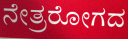
ನೇತ್ರರೋಗದ